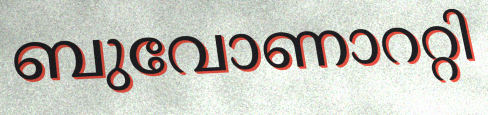
ബുവോണാററ്റി